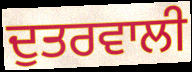
ਦੁਤਰਵਾਲੀ